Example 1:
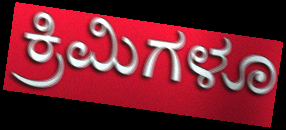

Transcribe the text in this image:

ಕ್ರಿಮಿಗಳೂ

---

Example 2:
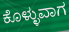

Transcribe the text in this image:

ಕೊಳ್ಳುವಾಗ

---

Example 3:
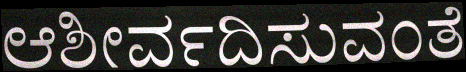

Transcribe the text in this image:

ಆಶೀರ್ವದಿಸುವಂತೆ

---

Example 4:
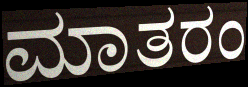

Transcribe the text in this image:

ಮಾತರಂ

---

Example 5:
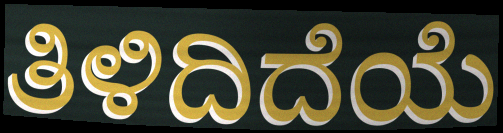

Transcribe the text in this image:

ತಿಳಿದಿದೆಯೆ